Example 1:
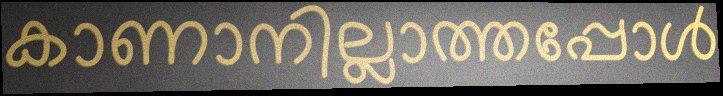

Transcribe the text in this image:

കാണാനില്ലാത്തപ്പോൾ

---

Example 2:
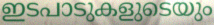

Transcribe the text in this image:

ഇടപാടുകളുടെയും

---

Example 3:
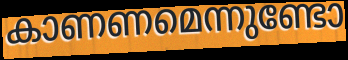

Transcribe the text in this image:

കാണണമെന്നുണ്ടോ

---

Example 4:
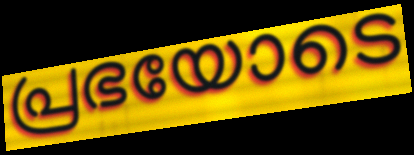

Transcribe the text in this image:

പ്രഭയോടെ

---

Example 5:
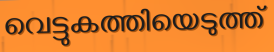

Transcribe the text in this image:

വെട്ടുകത്തിയെടുത്ത്